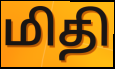
மிதி